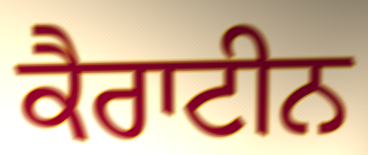
ਕੈਰਾਟੀਨ